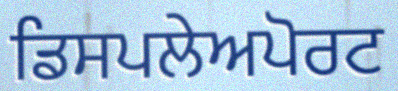
ਡਿਸਪਲੇਅਪੋਰਟ